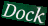
Dock